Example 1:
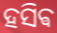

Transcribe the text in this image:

ହସିଵ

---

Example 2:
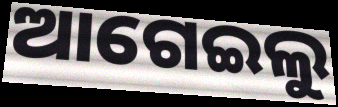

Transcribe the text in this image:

ଆଗେଇଲୁ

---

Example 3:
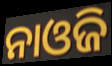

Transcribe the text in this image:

ନାଓଜି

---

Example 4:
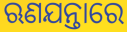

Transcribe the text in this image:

ଋଣଯନ୍ତାରେ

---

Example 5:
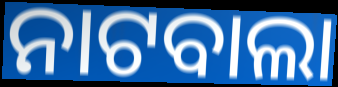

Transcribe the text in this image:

ନାଟବାଲା